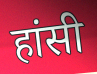
हांसी